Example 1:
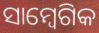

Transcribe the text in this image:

ସାମ୍ବେଗିକ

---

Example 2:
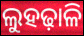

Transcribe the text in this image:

ଲୁହଢ଼ାଳି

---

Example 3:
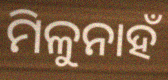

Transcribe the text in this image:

ମିଳୁନାହଁ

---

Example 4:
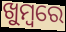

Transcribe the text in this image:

ଖୁମ୍ବରେ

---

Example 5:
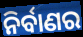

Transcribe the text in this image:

ନିର୍ବାଣର